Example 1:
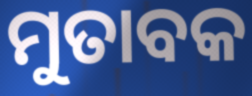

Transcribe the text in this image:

ମୁତାବକ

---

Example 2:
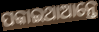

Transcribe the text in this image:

ପକାଇଥାଆନ୍ତେ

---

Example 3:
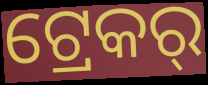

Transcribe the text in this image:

ଟ୍ରେକର୍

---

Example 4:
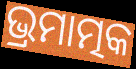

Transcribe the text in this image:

ଭ୍ରମାତ୍ମକ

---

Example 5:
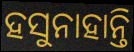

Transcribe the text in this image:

ହସୁନାହାନ୍ତି